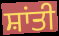
ਸ਼ਾਂਤੀ